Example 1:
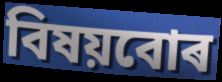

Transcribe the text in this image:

বিষয়বোৰ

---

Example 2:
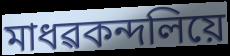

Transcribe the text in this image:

মাধৱকন্দলিয়ে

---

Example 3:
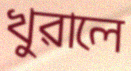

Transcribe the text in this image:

খুৱালে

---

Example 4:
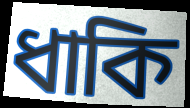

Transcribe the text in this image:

ধাকি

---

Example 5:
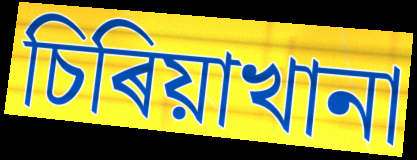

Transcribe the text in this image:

চিৰিয়াখানা